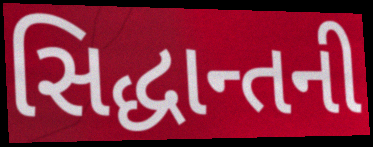
સિદ્ધાન્તની